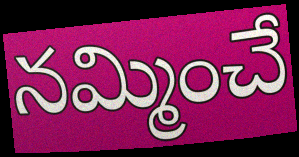
నమ్మించే